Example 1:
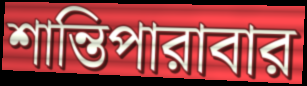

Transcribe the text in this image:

শান্তিপারাবার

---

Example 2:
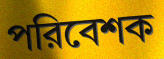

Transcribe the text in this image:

পরিবেশক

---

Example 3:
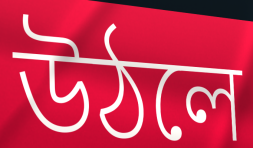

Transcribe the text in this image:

উঠলে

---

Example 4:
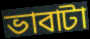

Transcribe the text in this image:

ভাবাটা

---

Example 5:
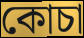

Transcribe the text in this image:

কোচা